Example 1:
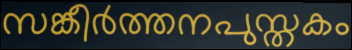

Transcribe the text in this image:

സങ്കീർത്തനപുസ്തകം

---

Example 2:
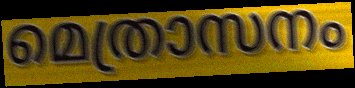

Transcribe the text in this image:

മെത്രാസനം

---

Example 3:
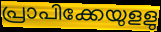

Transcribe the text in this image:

പ്രാപിക്കേയുളളു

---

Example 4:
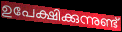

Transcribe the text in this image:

ഉപേക്ഷിക്കുന്നുണ്ട്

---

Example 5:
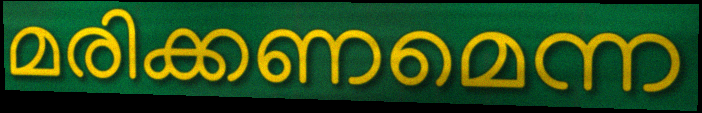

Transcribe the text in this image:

മരിക്കണമെന്ന